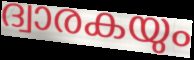
ദ്വാരകയും